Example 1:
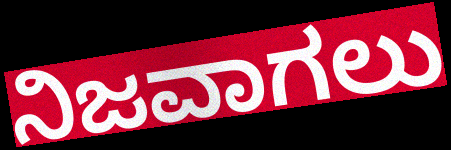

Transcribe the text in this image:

ನಿಜವಾಗಲು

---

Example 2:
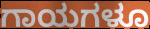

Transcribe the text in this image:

ಗಾಯಗಳೂ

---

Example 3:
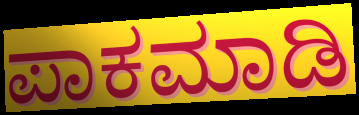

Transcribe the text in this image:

ಪಾಕಮಾಡಿ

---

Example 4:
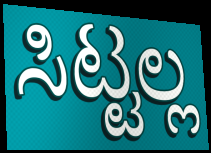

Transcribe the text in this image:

ಸಿಟ್ಟಲ್ಲ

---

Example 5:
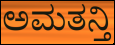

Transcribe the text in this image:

ಅಮತನ್ತಿ